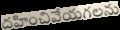
దహించివేయగలను